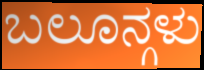
ಬಲೂನ್ಗಳು